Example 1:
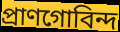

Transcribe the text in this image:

প্রাণগোবিন্দ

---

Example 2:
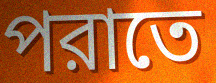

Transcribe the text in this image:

পরাতে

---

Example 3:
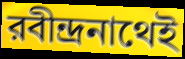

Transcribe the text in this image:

রবীন্দ্রনাথেই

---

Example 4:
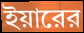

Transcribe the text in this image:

ইয়ারের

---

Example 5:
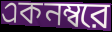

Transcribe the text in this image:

একনম্বরে